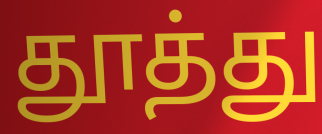
தூத்து